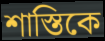
শাস্তিকে